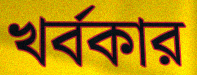
খর্বকার